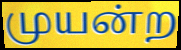
முயன்ற